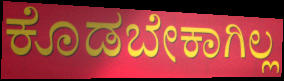
ಕೊಡಬೇಕಾಗಿಲ್ಲ